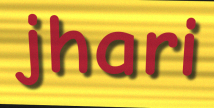
jhari